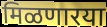
मिळणारया